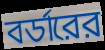
বর্ডারের